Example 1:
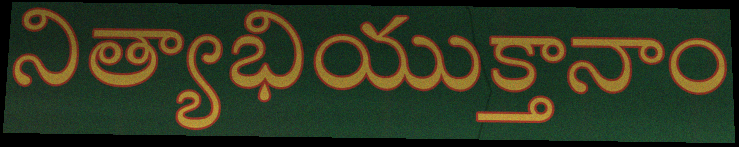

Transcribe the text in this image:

నిత్యాభియుక్తానాం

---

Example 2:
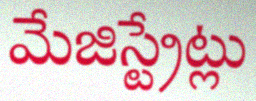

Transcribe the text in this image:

మేజిస్ట్రేట్లు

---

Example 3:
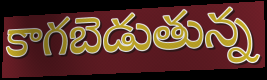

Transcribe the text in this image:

కాగబెడుతున్న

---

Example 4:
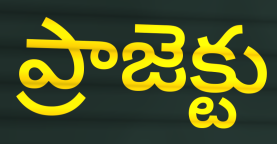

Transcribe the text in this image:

ప్రాజెక్టు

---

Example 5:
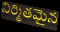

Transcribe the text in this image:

నిర్మితమైన